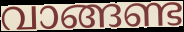
വാങ്ങണ്ട